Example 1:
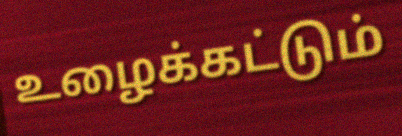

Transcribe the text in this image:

உழைக்கட்டும்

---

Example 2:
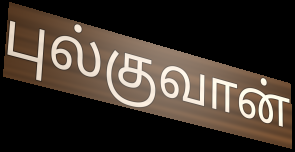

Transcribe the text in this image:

புல்குவான்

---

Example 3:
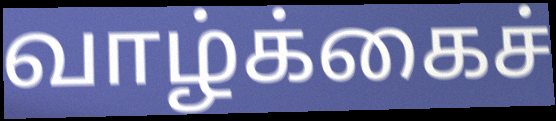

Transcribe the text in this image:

வாழ்க்கைச்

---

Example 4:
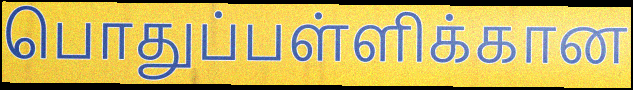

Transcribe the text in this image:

பொதுப்பள்ளிக்கான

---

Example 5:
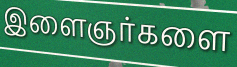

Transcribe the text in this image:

இளைஞர்களை